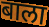
बाला